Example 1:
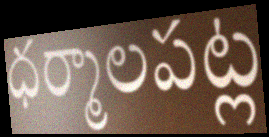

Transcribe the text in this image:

ధర్మాలపట్ల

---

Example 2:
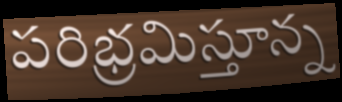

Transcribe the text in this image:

పరిభ్రమిస్తూన్న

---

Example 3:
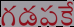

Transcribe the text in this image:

గడపకే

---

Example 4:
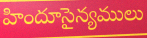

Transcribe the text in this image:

హిందూసైన్యములు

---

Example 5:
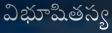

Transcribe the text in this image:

విభూషితస్య